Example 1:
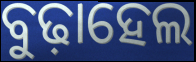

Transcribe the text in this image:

ବୁଢ଼ାହେଲ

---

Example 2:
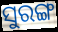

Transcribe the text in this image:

ସୁରଙ୍ଗ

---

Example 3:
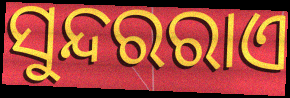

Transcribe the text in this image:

ସୁନ୍ଦରରାଏ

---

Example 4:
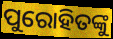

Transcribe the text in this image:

ପୁରୋହିତଙ୍କୁ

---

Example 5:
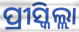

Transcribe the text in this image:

ପ୍ରୀସ୍କିଲ୍ଲା